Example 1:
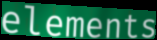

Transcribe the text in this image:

elements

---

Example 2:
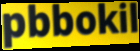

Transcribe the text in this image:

pbbokil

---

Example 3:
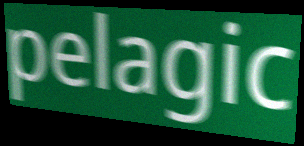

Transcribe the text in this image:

pelagic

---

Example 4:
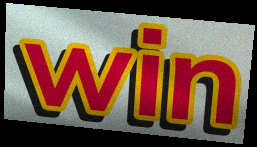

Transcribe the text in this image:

win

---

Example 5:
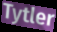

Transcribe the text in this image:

Tytler